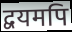
द्वयमपि